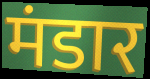
मंडार